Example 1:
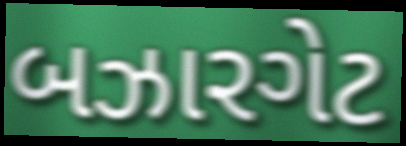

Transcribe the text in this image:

બઝારગેટ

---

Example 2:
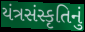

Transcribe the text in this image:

યંત્રસંસ્કૃતિનું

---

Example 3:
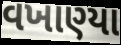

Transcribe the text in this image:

વખાણ્યા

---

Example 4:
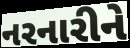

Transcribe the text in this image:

નરનારીને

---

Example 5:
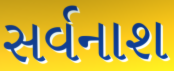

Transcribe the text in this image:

સર્વનાશ